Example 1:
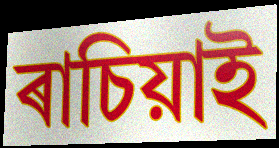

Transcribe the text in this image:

ৰাচিয়াই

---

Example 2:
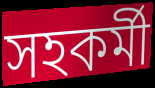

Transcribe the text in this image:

সহকৰ্মী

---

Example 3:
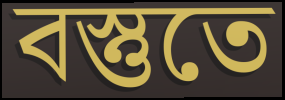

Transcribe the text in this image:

বস্তুতে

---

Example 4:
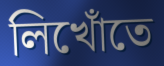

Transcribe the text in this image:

লিখোঁতে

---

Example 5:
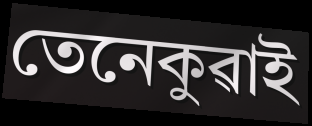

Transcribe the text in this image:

তেনেকুৱাই